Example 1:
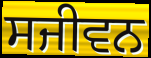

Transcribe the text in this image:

ਸਜੀਵਨ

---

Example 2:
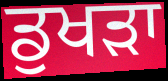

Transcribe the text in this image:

ਡੁਖੜਾ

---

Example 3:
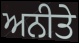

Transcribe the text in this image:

ਅਨੀਤੇ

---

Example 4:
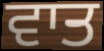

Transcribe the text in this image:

ਵਾਤ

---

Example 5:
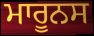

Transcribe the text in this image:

ਮਾਰੂਨਸ